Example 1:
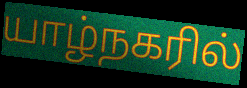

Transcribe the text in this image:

யாழ்நகரில்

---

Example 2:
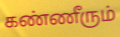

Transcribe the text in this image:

கண்ணீரும்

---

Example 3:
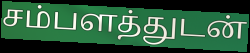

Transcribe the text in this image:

சம்பளத்துடன்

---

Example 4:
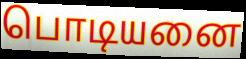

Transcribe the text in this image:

பொடியனை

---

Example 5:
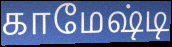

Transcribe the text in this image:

காமேஷ்டி